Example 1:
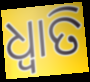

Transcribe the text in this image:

ଧ୍ବାତି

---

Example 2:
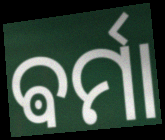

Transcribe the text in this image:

ଵର୍ମା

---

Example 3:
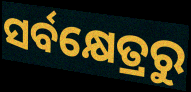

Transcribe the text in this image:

ସର୍ବକ୍ଷେତ୍ରରୁ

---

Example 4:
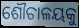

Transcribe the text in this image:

ଶୌଚାଳୟକୁ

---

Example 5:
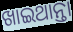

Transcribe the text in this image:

ଖାଇଥାନ୍ତା